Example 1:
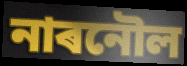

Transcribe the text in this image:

নাৰনৌল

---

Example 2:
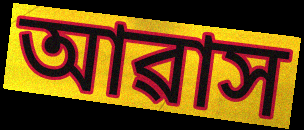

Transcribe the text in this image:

আৱাস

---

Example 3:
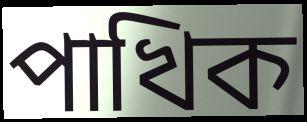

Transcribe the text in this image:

পাখিক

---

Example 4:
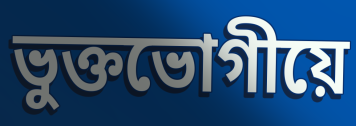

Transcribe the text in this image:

ভুক্তভোগীয়ে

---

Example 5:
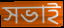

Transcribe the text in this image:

সভাই